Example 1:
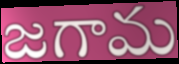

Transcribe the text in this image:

జగామ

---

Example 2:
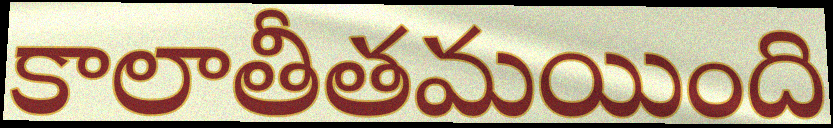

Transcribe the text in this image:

కాలాతీతమయింది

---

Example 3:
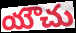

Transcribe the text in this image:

యౌచు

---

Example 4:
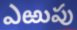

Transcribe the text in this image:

ఎఱుపు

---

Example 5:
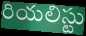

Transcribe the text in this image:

రియలిస్టు